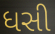
ધસી